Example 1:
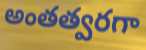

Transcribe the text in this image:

అంతత్వరగా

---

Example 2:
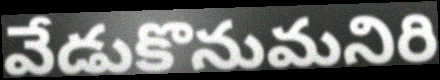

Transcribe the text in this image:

వేడుకొనుమనిరి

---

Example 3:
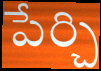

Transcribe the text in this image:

పేర్చి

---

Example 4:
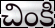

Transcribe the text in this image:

చింకి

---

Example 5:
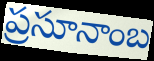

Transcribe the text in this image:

ప్రసూనాంబ